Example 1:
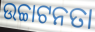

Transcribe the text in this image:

ଉଚ୍ଚାଟନତା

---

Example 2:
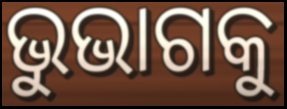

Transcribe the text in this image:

ଭୁଭାଗକୁ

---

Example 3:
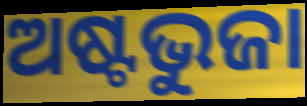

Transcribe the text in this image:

ଅଷ୍ଟଭୁଜା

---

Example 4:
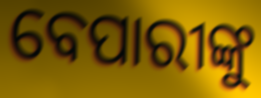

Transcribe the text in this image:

ବେପାରୀଙ୍କୁ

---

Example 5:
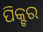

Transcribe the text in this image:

ପିକ୍ଚର